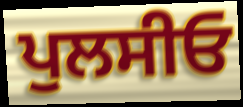
ਪੁਲਸੀਓ